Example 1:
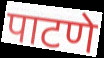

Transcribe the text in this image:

पाटणे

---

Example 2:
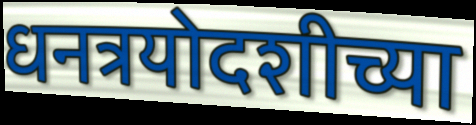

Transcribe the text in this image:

धनत्रयोदशीच्या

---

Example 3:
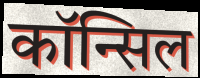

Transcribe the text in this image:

कॉन्सिल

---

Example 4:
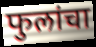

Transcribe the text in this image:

फुलांचा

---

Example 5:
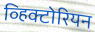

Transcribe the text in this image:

व्हिक्टोरियन